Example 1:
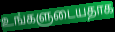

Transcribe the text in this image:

உங்களுடையதாக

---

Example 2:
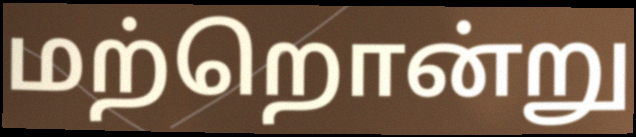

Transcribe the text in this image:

மற்றொன்று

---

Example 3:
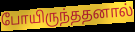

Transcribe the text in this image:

போயிருந்ததனால்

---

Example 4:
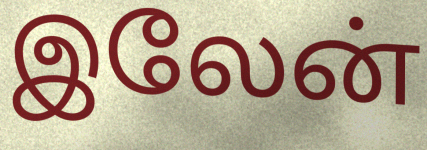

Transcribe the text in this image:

இலேன்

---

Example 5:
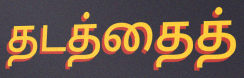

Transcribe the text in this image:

தடத்தைத்